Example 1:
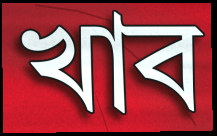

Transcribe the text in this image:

খাব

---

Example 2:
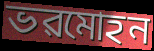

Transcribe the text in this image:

ভৱমোহন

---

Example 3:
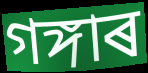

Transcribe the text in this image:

গঙ্গাৰ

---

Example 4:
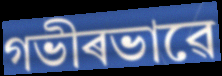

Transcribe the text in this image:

গভীৰভাৱে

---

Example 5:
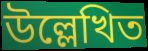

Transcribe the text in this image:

উল্লেখিত